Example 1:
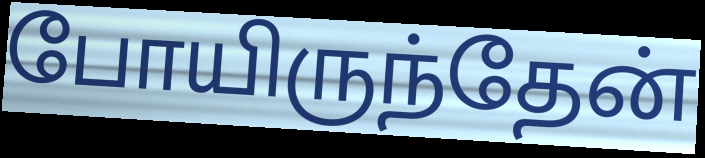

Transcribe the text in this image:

போயிருந்தேன்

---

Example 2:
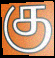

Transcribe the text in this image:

கு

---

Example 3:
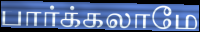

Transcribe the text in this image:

பார்க்கலாமே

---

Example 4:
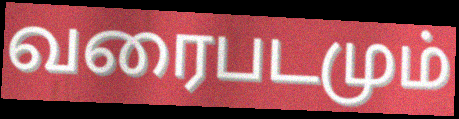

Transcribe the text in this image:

வரைபடமும்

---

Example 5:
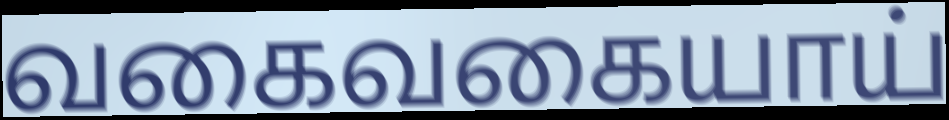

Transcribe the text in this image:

வகைவகையாய்